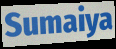
Sumaiya